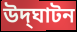
উদ্‌ঘাটন